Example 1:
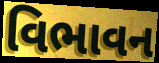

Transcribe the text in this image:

વિભાવન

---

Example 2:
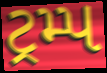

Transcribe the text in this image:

ટ્રમ્પ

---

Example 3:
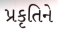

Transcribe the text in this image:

પ્રકૃતિને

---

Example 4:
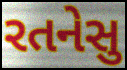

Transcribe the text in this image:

રતનેસુ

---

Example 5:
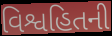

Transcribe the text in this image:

વિશ્વહિતની